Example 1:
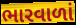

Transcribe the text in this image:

ભારવાળાં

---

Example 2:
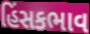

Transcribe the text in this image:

હિંસકભાવ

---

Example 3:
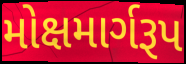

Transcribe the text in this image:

મોક્ષમાર્ગરૂપ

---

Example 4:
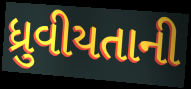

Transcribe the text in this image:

ધ્રુવીયતાની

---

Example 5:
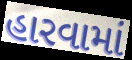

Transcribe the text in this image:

હારવામાં